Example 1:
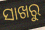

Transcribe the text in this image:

ସାଖରୁ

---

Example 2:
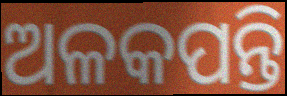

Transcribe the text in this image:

ଅଳକପନ୍ତି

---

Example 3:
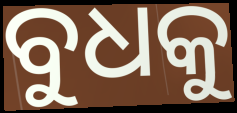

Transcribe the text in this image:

ବୁଧକୁ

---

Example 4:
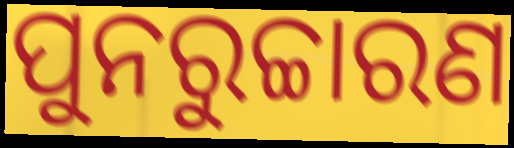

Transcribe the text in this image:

ପୁନରୁଚ୍ଚାରଣ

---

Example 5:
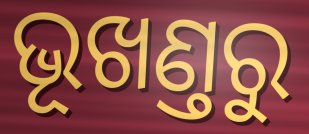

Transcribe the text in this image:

ଭୂଖଣ୍ତରୁ